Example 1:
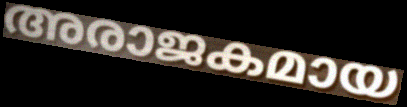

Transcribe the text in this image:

അരാജകമായ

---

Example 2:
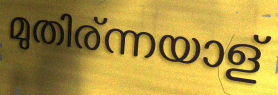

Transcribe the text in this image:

മുതിര്ന്നയാള്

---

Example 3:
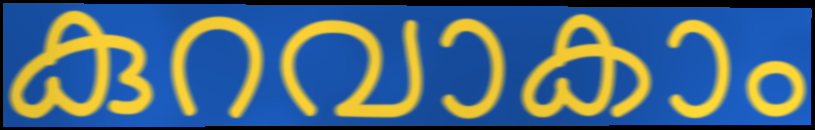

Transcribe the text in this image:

കുറവാകാം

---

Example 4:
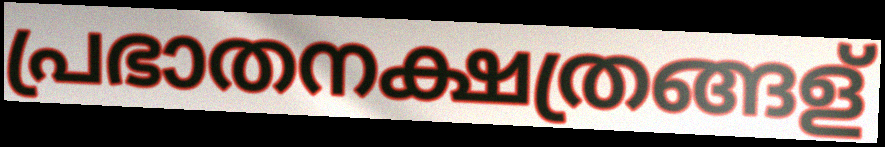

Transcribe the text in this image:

പ്രഭാതനക്ഷത്രങ്ങള്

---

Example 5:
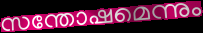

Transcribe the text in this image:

സന്തോഷമെന്നും